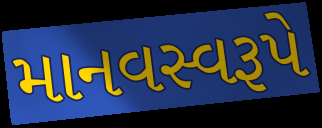
માનવસ્વરૂપે